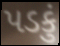
પડકું